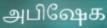
அபிஷேக